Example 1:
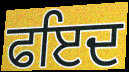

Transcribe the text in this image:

ਫਇਦ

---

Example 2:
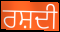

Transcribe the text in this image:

ਰਸ਼ਦੀ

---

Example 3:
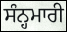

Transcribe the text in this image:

ਸੰਨ੍ਹਮਾਰੀ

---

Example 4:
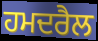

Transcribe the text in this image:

ਹਮਦਰੈਲ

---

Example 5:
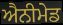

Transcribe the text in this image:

ਐਨੀਮੇਡ